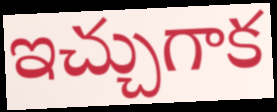
ఇచ్చుగాక